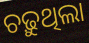
ଚଢ଼ୁଥିଲା